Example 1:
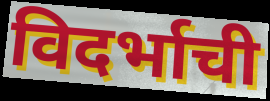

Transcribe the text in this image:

विदर्भाची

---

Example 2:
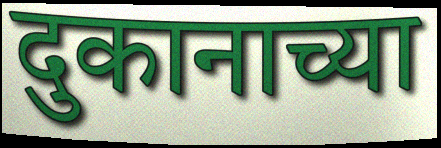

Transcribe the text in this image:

दुकानाच्या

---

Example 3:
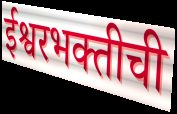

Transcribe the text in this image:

ईश्वरभक्तीची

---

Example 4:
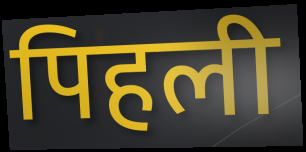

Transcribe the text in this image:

पिहली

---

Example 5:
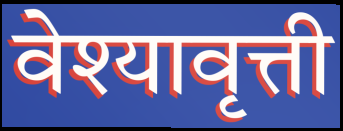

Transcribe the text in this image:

वेश्यावृत्ती